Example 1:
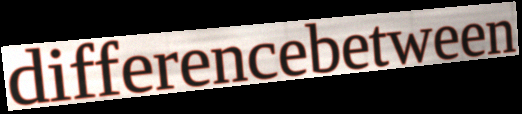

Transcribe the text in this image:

differencebetween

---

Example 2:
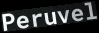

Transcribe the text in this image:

Peruvel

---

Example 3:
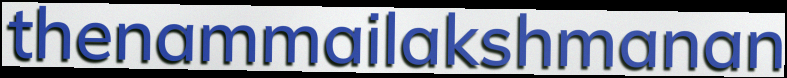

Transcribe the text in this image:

thenammailakshmanan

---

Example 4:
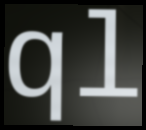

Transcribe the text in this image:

ql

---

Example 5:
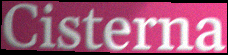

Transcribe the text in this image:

Cisterna